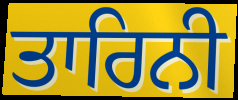
ਤਾਰਿਨੀ